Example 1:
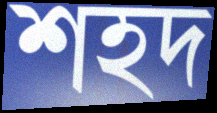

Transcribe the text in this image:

শহদ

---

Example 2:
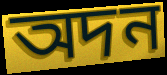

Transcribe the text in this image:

অদন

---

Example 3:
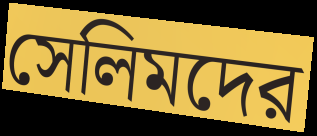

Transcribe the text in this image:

সেলিমদের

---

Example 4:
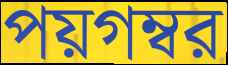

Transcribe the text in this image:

পয়গম্বর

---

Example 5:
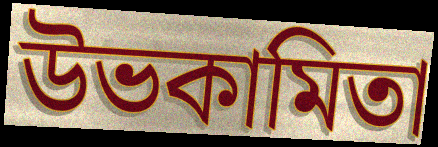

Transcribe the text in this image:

উভকামিতা